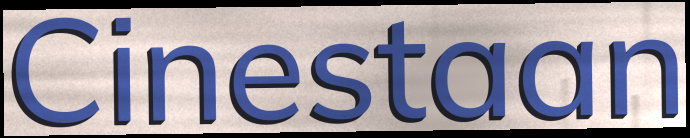
Cinestaan